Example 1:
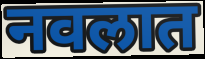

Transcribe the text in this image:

नवलात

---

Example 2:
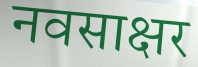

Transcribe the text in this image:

नवसाक्षर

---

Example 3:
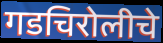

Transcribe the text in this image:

गडचिरोलीचे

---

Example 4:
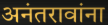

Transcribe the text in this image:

अनंतरावांना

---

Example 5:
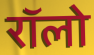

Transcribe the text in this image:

रॉलो